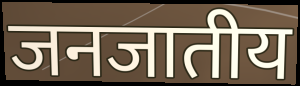
जनजातीय